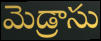
మెడ్రాసు